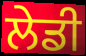
ਲੇਡੀ